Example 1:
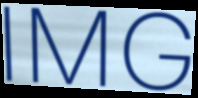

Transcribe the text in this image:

IMG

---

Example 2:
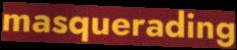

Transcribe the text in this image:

masquerading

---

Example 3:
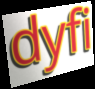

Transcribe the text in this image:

dyfi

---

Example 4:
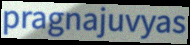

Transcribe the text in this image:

pragnajuvyas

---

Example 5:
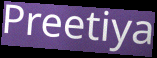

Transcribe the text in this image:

Preetiya